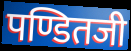
पण्डितजी